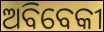
ଅବିବେକୀ